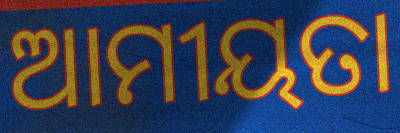
ଆମୀୟତା